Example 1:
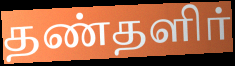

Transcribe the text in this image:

தண்தளிர்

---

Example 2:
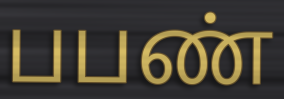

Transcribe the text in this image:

பபண்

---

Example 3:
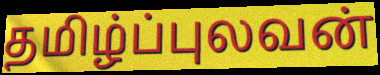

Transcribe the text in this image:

தமிழ்ப்புலவன்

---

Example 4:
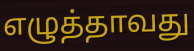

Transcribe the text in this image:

எழுத்தாவது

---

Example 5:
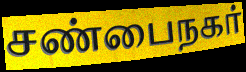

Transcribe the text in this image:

சண்பைநகர்